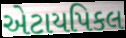
એટાયપિકલ